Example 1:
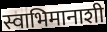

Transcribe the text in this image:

स्वाभिमानाशी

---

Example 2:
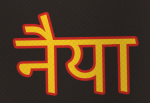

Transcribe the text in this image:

नैया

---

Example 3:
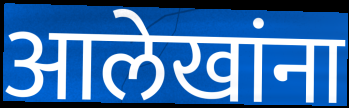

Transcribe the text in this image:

आलेखांना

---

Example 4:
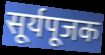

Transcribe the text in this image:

सूर्यपूजक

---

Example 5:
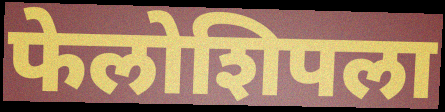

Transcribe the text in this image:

फेलोशिपला